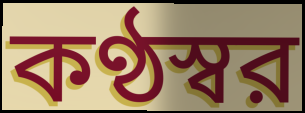
কণ্ঠস্বর